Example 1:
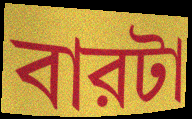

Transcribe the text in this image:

বারটা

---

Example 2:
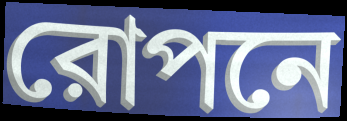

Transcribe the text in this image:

রোপনে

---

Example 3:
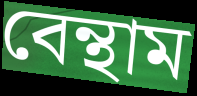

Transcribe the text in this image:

বেন্থাম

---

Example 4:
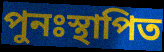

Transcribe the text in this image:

পুনঃস্থাপিত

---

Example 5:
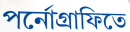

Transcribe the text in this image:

পর্নোগ্রাফিতে